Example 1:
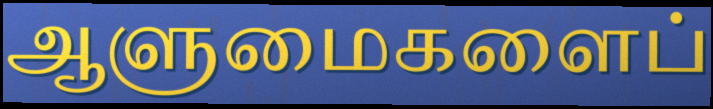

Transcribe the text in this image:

ஆளுமைகளைப்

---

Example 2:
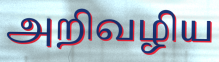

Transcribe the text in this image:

அறிவழிய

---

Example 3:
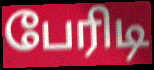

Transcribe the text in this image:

பேரிடி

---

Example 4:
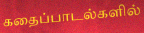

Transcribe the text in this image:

கதைப்பாடல்களில்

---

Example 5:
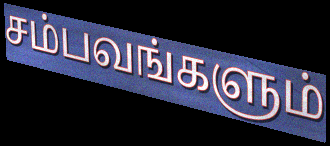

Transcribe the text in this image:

சம்பவங்களும்